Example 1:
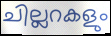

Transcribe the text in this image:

ചില്ലറകളും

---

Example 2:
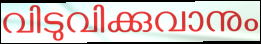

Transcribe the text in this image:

വിടുവിക്കുവാനും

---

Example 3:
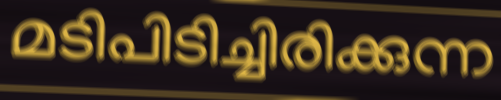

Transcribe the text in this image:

മടിപിടിച്ചിരിക്കുന്ന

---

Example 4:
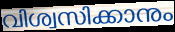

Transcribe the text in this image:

വിശ്വസിക്കാനും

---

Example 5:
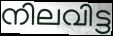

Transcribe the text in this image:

നിലവിട്ട